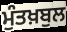
ਮੁੰਤਖ਼ਬੁਲ